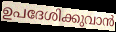
ഉപദേശിക്കുവാൻ